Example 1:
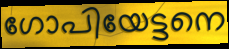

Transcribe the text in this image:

ഗോപിയേട്ടനെ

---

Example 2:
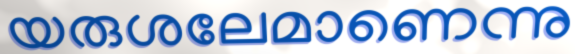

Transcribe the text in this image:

യരുശലേമാണെന്നു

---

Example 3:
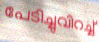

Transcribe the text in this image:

പേടിച്ചുവിറച്ച്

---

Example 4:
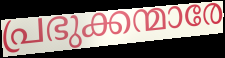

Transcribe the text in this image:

പ്രഭുക്കന്മാരേ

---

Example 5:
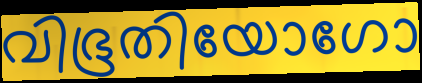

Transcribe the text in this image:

വിഭൂതിയോഗോ